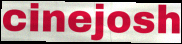
cinejosh